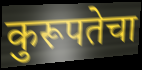
कुरूपतेचा